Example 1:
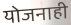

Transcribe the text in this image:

योजनाही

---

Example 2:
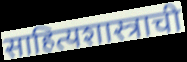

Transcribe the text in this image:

साहित्यशास्त्राची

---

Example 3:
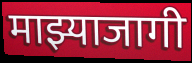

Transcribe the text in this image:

माझ्याजागी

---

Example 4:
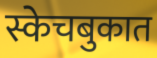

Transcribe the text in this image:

स्केचबुकात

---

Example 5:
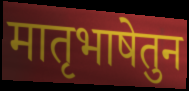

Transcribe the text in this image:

मातृभाषेतुन